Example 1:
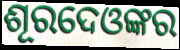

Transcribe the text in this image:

ଶୂରଦେଓଙ୍କର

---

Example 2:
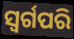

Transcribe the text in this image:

ସ୍ୱର୍ଗପରି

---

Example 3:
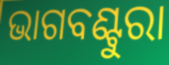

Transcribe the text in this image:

ଭାଗବଣ୍ଟୁରା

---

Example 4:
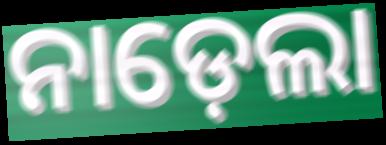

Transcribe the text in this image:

ନାଡ଼େଲା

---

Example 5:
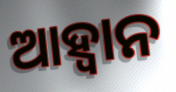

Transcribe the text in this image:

ଆହ୍ୱାନ